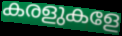
കരളുകളേ